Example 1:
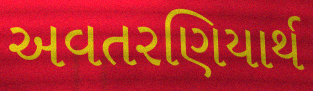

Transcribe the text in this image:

અવતરણિયાર્થ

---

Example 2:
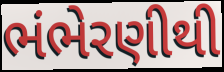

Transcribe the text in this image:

ભંભેરણીથી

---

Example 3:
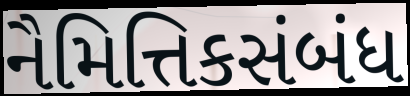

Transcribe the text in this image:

નૈમિત્તિકસંબંધ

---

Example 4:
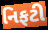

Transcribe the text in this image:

નિફટી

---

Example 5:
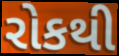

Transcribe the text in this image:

રોકથી